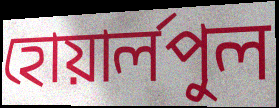
হোয়ার্লপুল